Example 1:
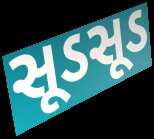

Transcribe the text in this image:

સૂડસૂડ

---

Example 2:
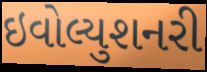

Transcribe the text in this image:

ઇવોલ્યુશનરી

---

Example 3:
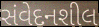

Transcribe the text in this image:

સંવેદનશીલ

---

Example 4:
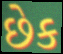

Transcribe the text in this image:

છેક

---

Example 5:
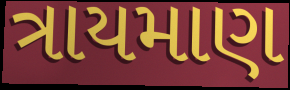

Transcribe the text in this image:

ત્રાયમાણ